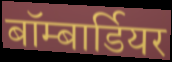
बॉम्बार्डियर